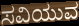
ಸವಿಯುವ